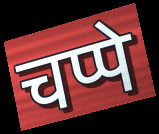
चप्पे